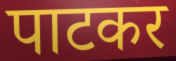
पाटकर